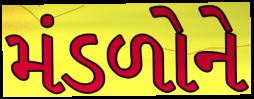
મંડળોને